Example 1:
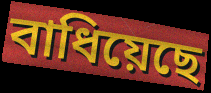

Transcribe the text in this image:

বাধিয়েছে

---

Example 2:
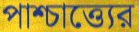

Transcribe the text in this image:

পাশ্চাত্ত্যের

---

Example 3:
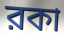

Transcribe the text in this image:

রকা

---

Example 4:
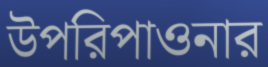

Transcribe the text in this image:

উপরিপাওনার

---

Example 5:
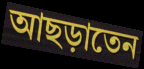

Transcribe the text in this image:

আছড়াতেন